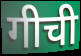
गीची